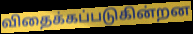
விதைக்கப்படுகின்றன